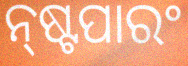
ନ୍‌ଷ୍ଟପାରଂ